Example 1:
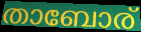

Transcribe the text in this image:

താബോര്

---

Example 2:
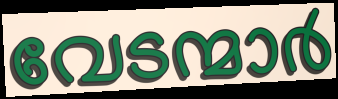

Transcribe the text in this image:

വേടന്മാർ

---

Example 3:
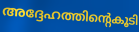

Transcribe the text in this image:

അദ്ദേഹത്തിന്റെകൂടി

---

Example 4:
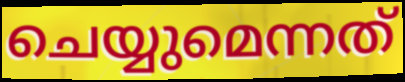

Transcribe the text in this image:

ചെയ്യുമെന്നത്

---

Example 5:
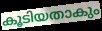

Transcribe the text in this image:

കൂടിയതാകും